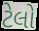
ટેલો